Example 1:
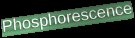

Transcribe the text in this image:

Phosphorescence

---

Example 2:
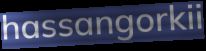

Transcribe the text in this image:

hassangorkii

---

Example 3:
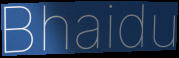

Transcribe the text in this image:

Bhaidu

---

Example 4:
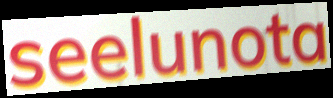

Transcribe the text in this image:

seelunota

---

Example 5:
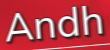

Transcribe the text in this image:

Andh